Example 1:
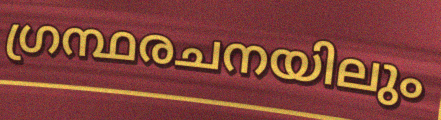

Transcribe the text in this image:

ഗ്രന്ഥരചനയിലും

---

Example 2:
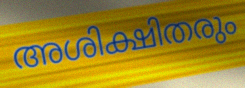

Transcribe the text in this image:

അശിക്ഷിതരും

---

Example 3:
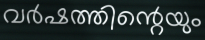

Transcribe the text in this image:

വർഷത്തിന്റെയും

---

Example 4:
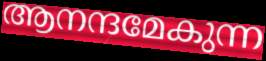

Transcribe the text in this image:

ആനന്ദമേകുന്ന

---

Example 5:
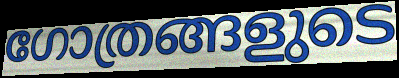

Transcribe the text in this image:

ഗോത്രങ്ങളുടെ